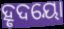
ହୃଦୟୋ